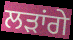
ਲੜਾਂਗੇ